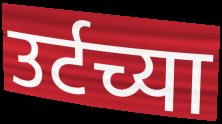
उर्टच्या